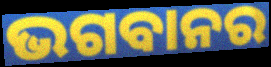
ଭଗବାନର